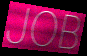
JOB